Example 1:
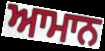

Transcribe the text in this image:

ਆਮਾਨ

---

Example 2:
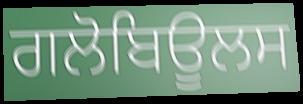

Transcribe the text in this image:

ਗਲੋਬਿਊਲਸ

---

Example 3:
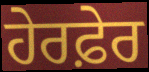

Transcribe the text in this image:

ਹੇਰਫ਼ੇਰ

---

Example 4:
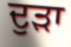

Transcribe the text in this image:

ਦੁੜਾ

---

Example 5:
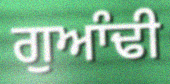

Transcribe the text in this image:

ਗੁਆੰਢੀ